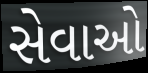
સેવાઓ